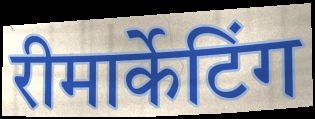
रीमार्केटिंग